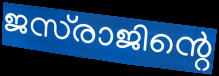
ജസ്‌രാജിന്റെ